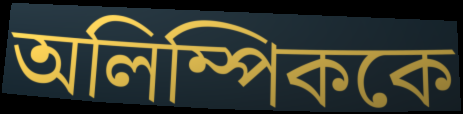
অলিম্পিককে